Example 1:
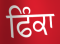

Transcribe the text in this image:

ਫਿੰਕਾ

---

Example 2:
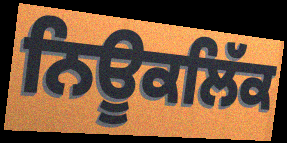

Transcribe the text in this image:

ਨਿਊਕਲਿੱਕ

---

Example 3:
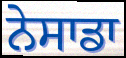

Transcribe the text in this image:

ਨੇਸਾਡਾ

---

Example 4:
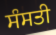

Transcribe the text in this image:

ਸੰਸਤੀ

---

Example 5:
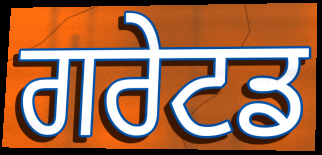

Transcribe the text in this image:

ਗਰੇਟਡ